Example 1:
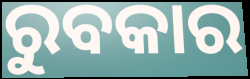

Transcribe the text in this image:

ରୁବକାର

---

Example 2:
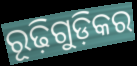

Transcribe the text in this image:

ରୂଢ଼ିଗୁଡ଼ିକର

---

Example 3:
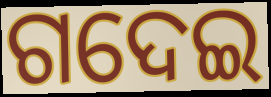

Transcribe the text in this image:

ଗଦେଇ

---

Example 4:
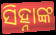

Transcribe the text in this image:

ସିହ୍ନାଙ୍କ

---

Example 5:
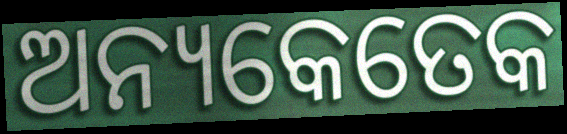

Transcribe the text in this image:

ଅନ୍ୟକେତେକ